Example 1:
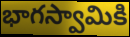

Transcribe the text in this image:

భాగస్వామికి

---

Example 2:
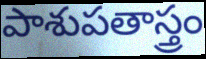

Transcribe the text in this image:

పాశుపతాస్త్రం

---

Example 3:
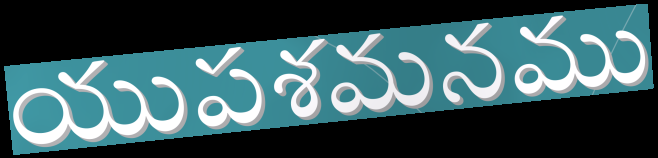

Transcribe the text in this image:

యుపశమనము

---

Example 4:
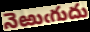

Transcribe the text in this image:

నెఱుఁగుదు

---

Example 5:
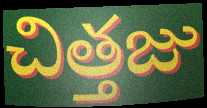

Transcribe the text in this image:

చిత్తజు